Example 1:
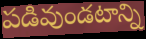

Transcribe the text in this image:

పడివుండటాన్ని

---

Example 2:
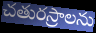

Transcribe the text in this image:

చతురస్రాలను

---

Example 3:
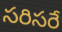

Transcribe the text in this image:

సరిసరే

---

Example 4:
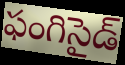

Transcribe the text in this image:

ఫంగిసైడ్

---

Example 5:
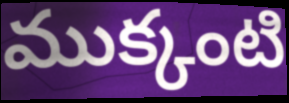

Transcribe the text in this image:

ముక్కంటి